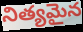
నిత్యమైన